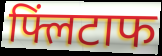
फ्लिंटाफ